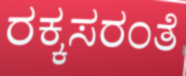
ರಕ್ಕಸರಂತೆ